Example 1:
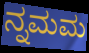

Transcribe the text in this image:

ನ್ನಮಮ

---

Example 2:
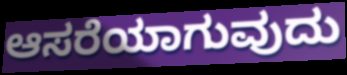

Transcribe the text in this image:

ಆಸರೆಯಾಗುವುದು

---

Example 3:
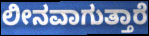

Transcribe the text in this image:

ಲೀನವಾಗುತ್ತಾರೆ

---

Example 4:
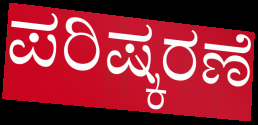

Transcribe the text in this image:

ಪರಿಷ್ಕರಣೆ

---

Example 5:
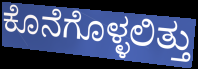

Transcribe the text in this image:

ಕೊನೆಗೊಳ್ಳಲಿತ್ತು